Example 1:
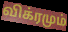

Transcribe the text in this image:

விக்ரமும்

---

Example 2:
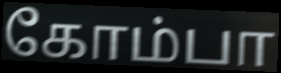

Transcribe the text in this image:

கோம்பா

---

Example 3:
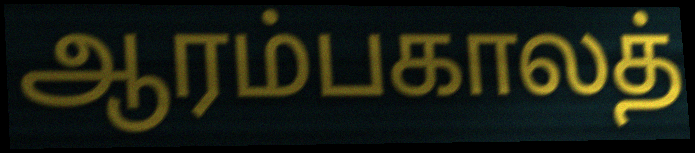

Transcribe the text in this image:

ஆரம்பகாலத்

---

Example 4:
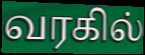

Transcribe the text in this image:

வரகில்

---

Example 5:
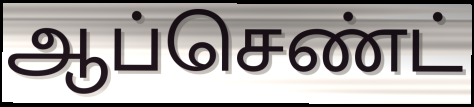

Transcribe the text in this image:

ஆப்செண்ட்